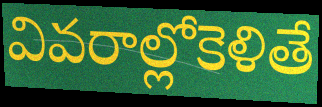
వివరాల్లోకెళితే